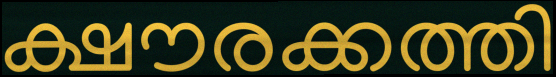
ക്ഷൗരക്കത്തി